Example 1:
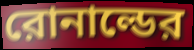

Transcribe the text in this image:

রোনাল্ডের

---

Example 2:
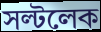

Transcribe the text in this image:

সল্টলেক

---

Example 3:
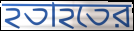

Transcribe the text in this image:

হতাহতের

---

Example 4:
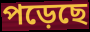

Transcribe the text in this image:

পড়েছে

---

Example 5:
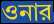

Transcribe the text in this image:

ওনার